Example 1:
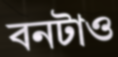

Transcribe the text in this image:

বনটাও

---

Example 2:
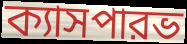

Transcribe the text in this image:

ক্যাসপারভ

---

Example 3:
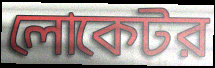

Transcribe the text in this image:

লোকেটর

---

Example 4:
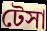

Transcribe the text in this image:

টেসা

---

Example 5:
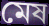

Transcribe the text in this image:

মেষ